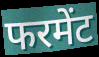
फरमेंट